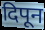
दिपून